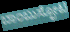
ಬಾಂಬುಸ್ಫೋಟ